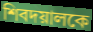
শিবদয়ালকে